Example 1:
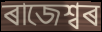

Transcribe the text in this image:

ৰাজেশ্বৰ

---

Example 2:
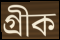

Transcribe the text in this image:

গ্ৰীক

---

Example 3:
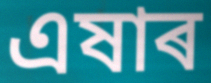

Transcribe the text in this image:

এষাৰ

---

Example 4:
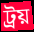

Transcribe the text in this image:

ট্ৰয়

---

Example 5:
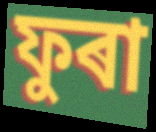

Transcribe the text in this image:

ফুৰা